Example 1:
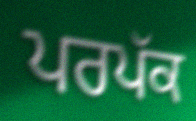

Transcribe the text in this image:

ਪਰਪੱਕ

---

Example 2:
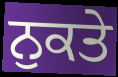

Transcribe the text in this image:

ਨੁਕਤੇ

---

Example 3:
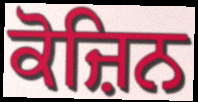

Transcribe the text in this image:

ਕੋਜ਼ਿਨ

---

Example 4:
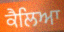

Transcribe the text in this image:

ਕੈਲਿਆ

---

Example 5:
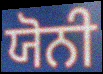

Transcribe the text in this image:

ਯੋਨੀ